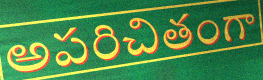
అపరిచితంగా